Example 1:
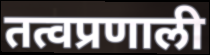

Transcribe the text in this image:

तत्वप्रणाली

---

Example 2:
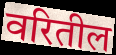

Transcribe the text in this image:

वरितील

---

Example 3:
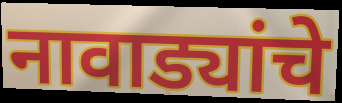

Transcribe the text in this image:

नावाड्यांचे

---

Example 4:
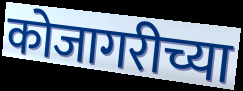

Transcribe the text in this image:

कोजागरीच्या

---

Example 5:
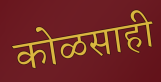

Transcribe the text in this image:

कोळसाही